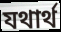
যথার্থ